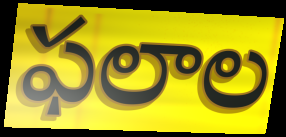
ఫలాల